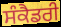
ਸੰਕੈਡਰੀ